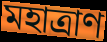
মহাত্রাণ